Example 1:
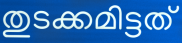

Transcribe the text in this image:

തുടക്കമിട്ടത്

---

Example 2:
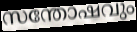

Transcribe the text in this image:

സന്തോഷവും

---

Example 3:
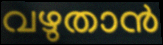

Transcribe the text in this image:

വഴുതാൻ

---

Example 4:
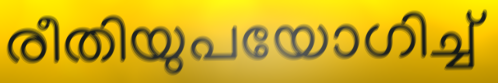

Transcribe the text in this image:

രീതിയുപയോഗിച്ച്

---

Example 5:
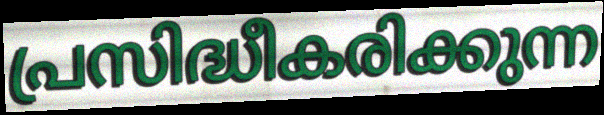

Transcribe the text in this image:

പ്രസിദ്ധീകരിക്കുന്ന